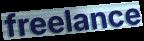
freelance